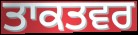
ਤਾਕਤਵਰ